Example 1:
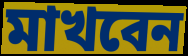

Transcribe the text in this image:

মাখবেন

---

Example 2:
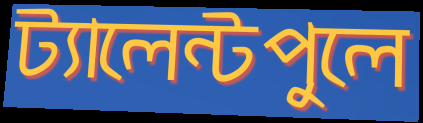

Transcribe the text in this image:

ট্যালেন্টপুলে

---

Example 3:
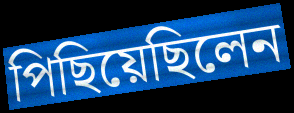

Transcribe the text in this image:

পিছিয়েছিলেন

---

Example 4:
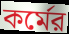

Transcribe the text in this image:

কর্মের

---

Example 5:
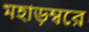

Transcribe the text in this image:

মহাড়ম্বরে